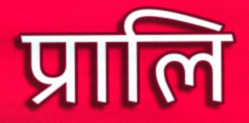
प्रालि